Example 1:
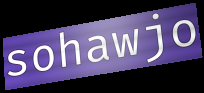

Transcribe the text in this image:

sohawjo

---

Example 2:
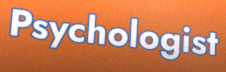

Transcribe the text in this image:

Psychologist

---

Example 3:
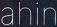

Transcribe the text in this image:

ahin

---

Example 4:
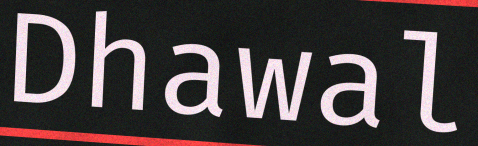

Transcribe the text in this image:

Dhawal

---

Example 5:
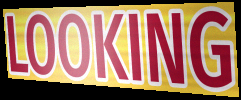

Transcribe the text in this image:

LOOKING